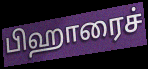
பிஹாரைச்